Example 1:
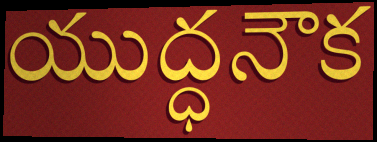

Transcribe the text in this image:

యుద్ధనౌక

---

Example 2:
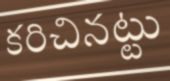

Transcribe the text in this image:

కరిచినట్టు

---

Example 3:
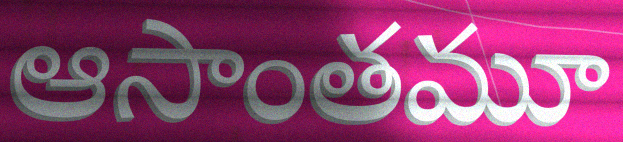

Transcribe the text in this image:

ఆసాంతమూ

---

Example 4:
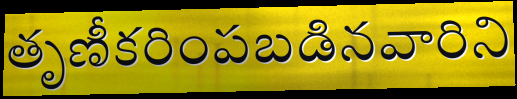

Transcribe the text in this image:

తృణీకరింపబడినవారిని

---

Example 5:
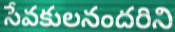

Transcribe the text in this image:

సేవకులనందరిని